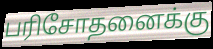
பரிசோதனைக்கு